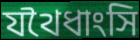
যথৈধাংসি